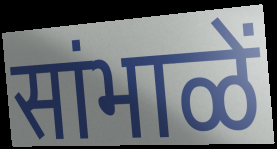
सांभाळें